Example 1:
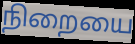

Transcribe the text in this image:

நிறையை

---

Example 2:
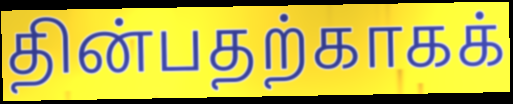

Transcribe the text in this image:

தின்பதற்காகக்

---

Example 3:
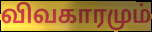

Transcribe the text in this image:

விவகாரமும்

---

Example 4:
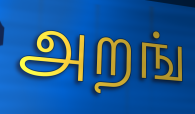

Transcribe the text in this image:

அறங்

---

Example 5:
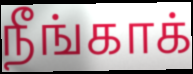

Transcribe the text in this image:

நீங்காக்